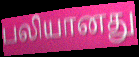
பலியானது